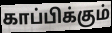
காப்பிக்கும்